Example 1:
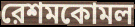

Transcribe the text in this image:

রেশমকোমল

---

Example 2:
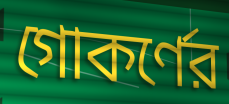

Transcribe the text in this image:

গোকর্ণের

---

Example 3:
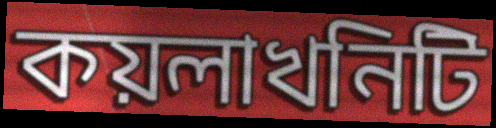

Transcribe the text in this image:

কয়লাখনিটি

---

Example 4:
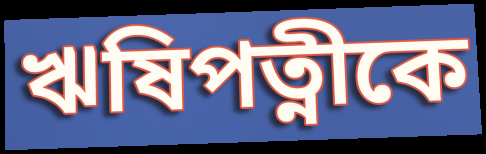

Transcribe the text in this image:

ঋষিপত্নীকে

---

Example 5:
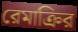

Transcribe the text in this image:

রেমাক্রির